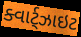
ક્વાર્ટ્ઝાઇટ